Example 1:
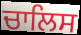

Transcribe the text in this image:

ਚਾਲਿਸ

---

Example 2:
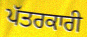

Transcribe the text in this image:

ਪੱਤਰਕਾਰੀ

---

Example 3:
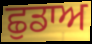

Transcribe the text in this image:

ਛੁਡਾਅ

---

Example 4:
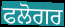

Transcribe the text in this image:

ਫਲੋਗਰ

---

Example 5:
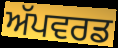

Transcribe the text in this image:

ਅੱਪਵਰਡ